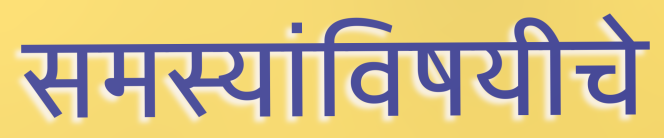
समस्यांविषयीचे